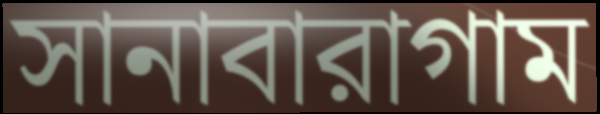
সানাবারাগাম